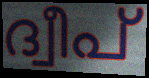
ദ്വീപ്